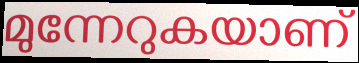
മുന്നേറുകയാണ്